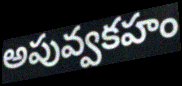
అపువ్వకహం